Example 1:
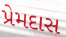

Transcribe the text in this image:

પ્રેમદાસ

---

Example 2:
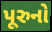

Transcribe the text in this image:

પૂરુનો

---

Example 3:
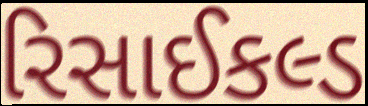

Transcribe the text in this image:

રિસાઈકલ્ડ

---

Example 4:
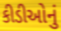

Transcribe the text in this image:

કીડીઓનું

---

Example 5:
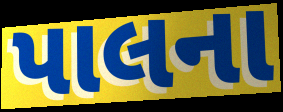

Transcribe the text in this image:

પાલના